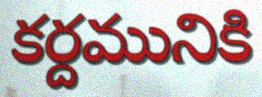
కర్దమునికి